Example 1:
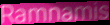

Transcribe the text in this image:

Ramnamis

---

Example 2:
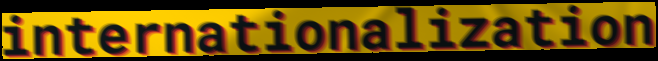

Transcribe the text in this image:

internationalization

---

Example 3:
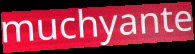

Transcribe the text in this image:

muchyante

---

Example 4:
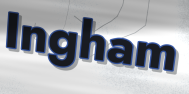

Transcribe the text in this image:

Ingham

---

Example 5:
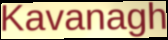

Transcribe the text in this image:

Kavanagh